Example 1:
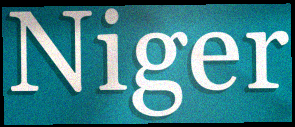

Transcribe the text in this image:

Niger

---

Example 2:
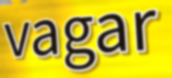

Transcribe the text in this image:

vagar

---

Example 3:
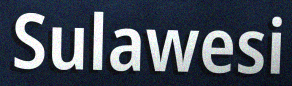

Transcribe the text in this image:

Sulawesi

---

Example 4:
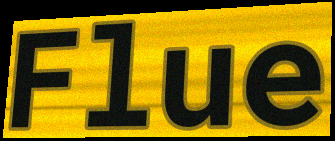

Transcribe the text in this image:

Flue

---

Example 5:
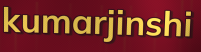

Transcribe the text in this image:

kumarjinshi